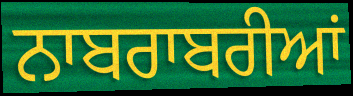
ਨਾਬਰਾਬਰੀਆਂ